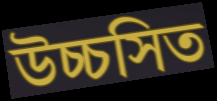
উচ্চসিত